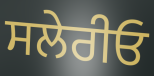
ਸਲੇਰੀਓ